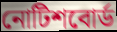
নোটিশবোর্ড